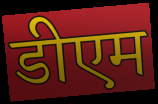
डीएम